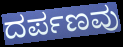
ದರ್ಪಣವು